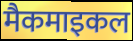
मैकमाइकल